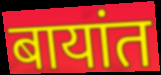
बायांत